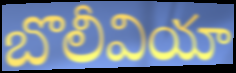
బొలీవియా